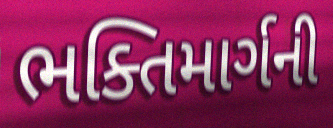
ભક્તિમાર્ગની